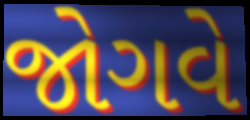
જોગવે